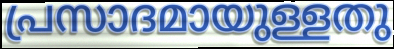
പ്രസാദമായുള്ളതു